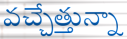
వచ్చేత్తున్నా